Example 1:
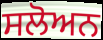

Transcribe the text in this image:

ਸਲੋਅਨ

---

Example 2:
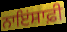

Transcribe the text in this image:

ਨਾਇਂਸਾਫ਼ੀ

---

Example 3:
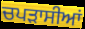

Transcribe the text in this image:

ਚਪੜਾਸੀਆਂ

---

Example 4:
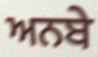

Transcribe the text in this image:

ਅਨਬੇ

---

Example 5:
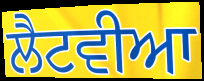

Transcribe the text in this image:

ਲੈਟਵੀਆ